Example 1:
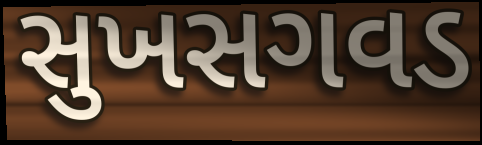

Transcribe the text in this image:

સુખસગવડ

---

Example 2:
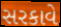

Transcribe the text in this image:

સરકાવે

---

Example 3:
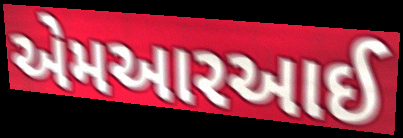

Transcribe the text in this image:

એમઆરઆઈ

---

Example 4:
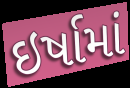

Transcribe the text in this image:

ઇર્ષામાં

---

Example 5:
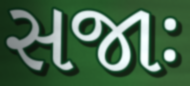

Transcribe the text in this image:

સજાઃ